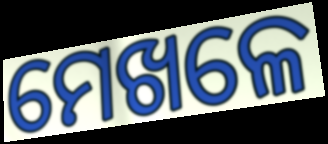
ମେଖଳେ